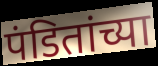
पंडितांच्या